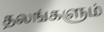
தலங்களும்